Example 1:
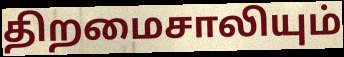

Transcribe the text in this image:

திறமைசாலியும்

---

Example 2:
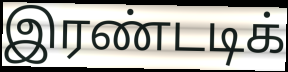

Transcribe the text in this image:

இரண்டடிக்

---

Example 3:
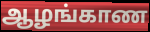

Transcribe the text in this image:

ஆழங்காண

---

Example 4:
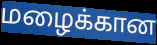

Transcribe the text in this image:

மழைக்கான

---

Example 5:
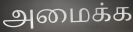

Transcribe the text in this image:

அமைக்க